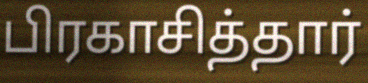
பிரகாசித்தார்